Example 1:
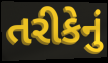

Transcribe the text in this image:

તરીકેનું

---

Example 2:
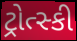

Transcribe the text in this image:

ટ્રોત્સ્કી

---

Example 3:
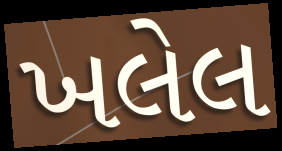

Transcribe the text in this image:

ખલેલ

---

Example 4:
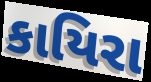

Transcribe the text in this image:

કાયિરા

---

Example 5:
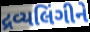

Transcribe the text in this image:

દ્રવ્યલિંગીને